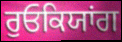
ਰੁਓਕਿਯਾਂਗ